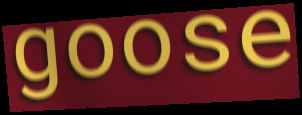
goose